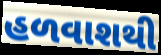
હળવાશથી